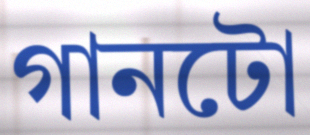
গানটো